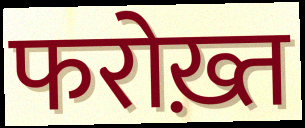
फरोख़्त